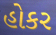
હોકર